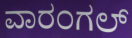
ವಾರಂಗಲ್